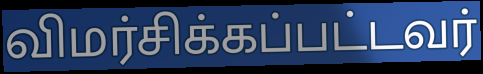
விமர்சிக்கப்பட்டவர்